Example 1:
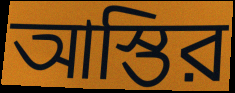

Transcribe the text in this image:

আস্তির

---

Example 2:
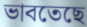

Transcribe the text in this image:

ভাবতেছে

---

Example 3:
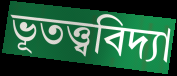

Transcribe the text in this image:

ভূতত্ত্ববিদ্যা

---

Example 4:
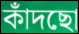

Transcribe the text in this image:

কাঁদছো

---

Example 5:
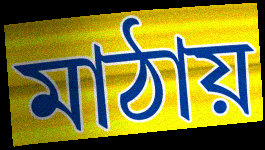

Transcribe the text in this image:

মাঠায়